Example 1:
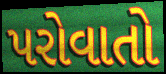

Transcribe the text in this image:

પરોવાતો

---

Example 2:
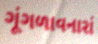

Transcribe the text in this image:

ગૂંગળાવનારાં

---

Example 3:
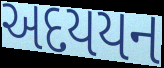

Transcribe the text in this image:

અદયયન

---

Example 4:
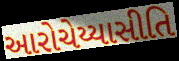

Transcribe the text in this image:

આરોચેય્યાસીતિ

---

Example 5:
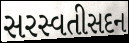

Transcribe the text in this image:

સરસ્વતીસદન